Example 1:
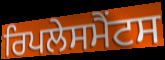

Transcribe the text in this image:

ਰਿਪਲੇਸਮੈਂਟਸ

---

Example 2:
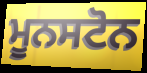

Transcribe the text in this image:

ਮੂਨਸਟੋਨ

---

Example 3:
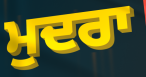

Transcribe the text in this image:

ਮੁਦਰਾ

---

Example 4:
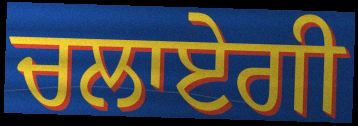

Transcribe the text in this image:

ਚਲਾਏਗੀ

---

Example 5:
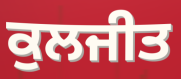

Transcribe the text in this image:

ਕੁਲਜੀਤ